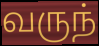
வருந்